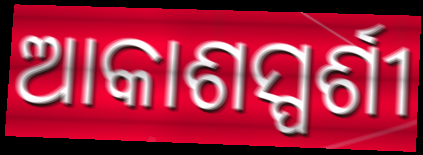
ଆକାଶସ୍ପର୍ଶୀ